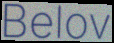
Belov